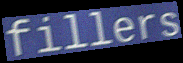
fillers